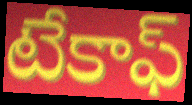
టేకాఫ్